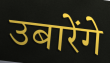
उबारेंगे